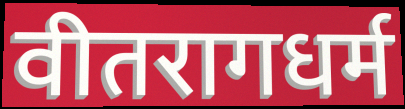
वीतरागधर्म